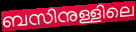
ബസിനുള്ളിലെ